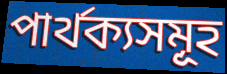
পাৰ্থক্যসমূহ